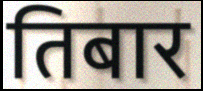
तिबार